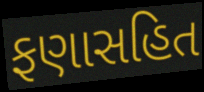
ફણાસહિત